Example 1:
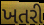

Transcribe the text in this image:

ખતરી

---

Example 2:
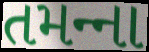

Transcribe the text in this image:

તમન્‍ના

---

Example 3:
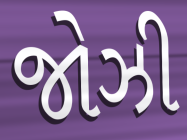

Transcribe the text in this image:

જોઝી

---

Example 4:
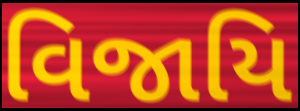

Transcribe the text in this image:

વિજાયિ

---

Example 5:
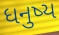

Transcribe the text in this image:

ધનુષ્ય